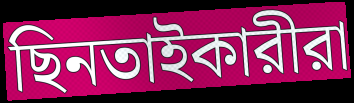
ছিনতাইকারীরা